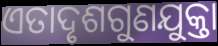
ଏତାଦୃଶଗୁଣଯୁକ୍ତା